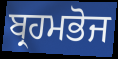
ਬ੍ਰਹਮਭੋਜ